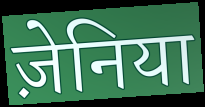
ज़ेनिया